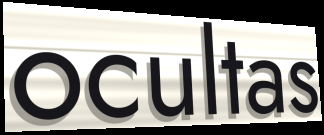
ocultas